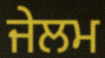
ਜੇਲਮ